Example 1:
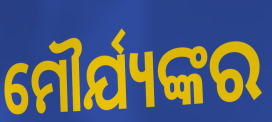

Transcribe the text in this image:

ମୌର୍ଯ୍ୟଙ୍କର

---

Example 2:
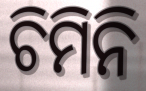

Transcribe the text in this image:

ଚିମିନି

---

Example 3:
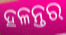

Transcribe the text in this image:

ହଳନ୍ତର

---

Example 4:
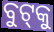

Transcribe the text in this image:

ବୁଟ୍‌କୁ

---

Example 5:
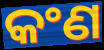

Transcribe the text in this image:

କଂଣ